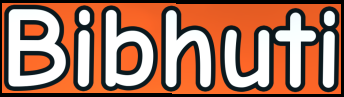
Bibhuti